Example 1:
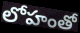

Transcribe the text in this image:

లోహంతో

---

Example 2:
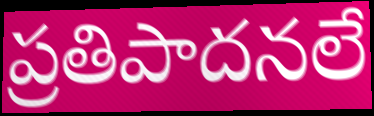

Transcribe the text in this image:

ప్రతిపాదనలే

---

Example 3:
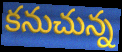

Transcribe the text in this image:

కనుచున్న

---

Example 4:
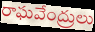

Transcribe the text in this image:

రాఘవేంద్రులు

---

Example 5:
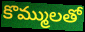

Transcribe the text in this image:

కొమ్ములతో